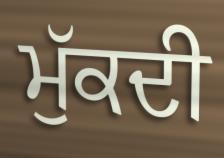
ਮੁੱਕਦੀ